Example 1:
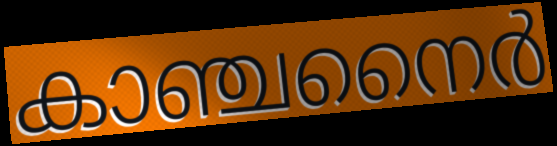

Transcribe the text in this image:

കാഞ്ചനൈർ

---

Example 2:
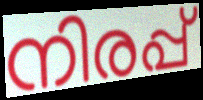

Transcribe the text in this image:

നിരപ്പ്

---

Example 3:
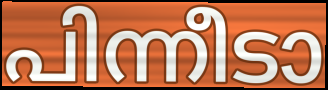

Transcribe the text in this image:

പിന്നീടാ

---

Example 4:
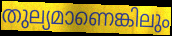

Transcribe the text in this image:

തുല്യമാണെങ്കിലും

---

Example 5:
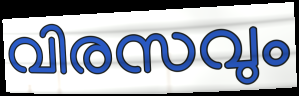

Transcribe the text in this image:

വിരസവും